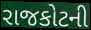
રાજકોટની